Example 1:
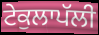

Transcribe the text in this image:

ਟੇਕੁਲਾਪੱਲੀ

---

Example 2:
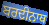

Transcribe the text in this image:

ਬਰਦੀਨਾਥ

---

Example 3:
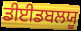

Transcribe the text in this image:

ਡੀਈਡਬਲਯੂ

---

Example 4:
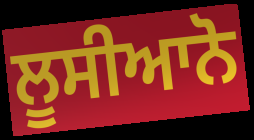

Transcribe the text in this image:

ਲੂਸੀਆਨੋ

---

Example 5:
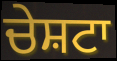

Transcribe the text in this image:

ਚੇਸ਼ਟਾ